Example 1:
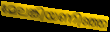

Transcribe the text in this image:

മേലങ്കിയണിഞ്ഞ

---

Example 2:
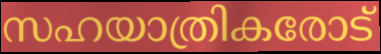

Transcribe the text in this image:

സഹയാത്രികരോട്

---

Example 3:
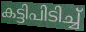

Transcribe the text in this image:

കട്ടിപിടിച്ച്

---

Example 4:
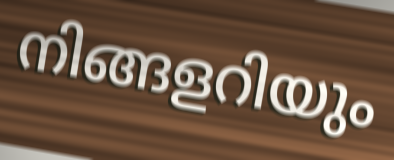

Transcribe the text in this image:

നിങ്ങളറിയും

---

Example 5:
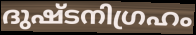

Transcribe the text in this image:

ദുഷ്ടനിഗ്രഹം